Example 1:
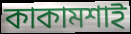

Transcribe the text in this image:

কাকামশাই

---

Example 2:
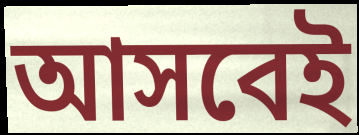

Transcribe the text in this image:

আসবেই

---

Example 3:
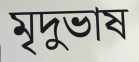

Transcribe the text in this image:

মৃদুভাষ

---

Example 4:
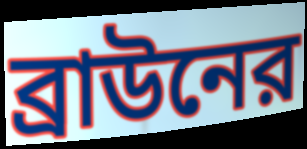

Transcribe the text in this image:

ব্রাউনের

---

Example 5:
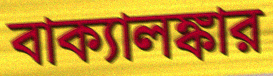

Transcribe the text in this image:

বাক্যালঙ্কার